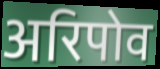
अरिपोव